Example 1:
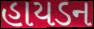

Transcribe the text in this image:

હાયડન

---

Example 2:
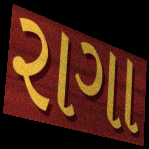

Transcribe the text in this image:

રાગા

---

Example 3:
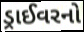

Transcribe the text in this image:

ડ્રાઈવરનો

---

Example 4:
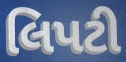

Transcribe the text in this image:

લિપટી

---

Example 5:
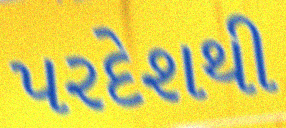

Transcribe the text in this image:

પરદેશથી